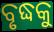
ବୃଦ୍ଧକୁ